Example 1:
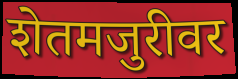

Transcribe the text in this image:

शेतमजुरीवर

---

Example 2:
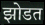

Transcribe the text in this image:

झोडत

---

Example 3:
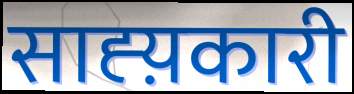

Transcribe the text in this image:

साह्य़कारी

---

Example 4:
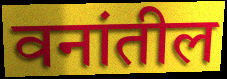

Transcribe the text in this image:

वनांतील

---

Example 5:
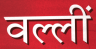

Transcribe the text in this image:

वल्लीं